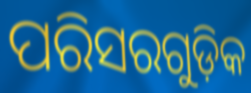
ପରିସରଗୁଡ଼ିକ